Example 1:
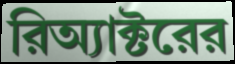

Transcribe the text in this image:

রিঅ্যাক্টরের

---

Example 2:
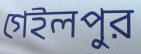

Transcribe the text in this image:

গেইলপুর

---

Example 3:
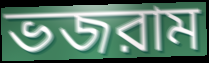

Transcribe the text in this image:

ভজরাম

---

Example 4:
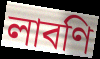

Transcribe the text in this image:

লাবণি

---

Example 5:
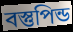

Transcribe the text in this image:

বস্তুপিন্ড